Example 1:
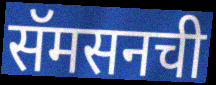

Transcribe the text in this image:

सॅमसनची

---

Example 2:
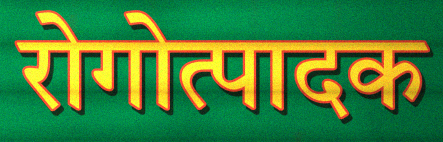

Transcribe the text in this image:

रोगोत्पादक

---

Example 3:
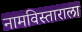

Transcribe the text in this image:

नामविस्ताराला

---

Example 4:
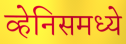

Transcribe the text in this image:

व्हेनिसमध्ये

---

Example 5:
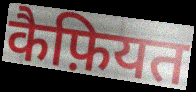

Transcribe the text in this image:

कैफ़ियत